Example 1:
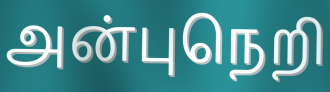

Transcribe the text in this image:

அன்புநெறி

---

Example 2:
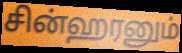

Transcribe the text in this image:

சின்ஹரனும்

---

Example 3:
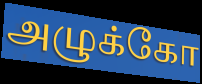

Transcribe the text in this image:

அழுக்கோ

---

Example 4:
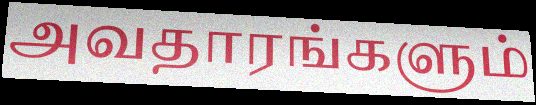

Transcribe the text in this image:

அவதாரங்களும்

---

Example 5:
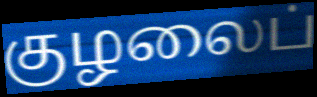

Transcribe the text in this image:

குழலைப்